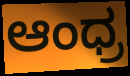
ಆಂಧ್ರ